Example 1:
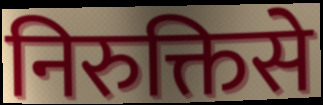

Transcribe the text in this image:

निरुक्तिसे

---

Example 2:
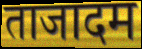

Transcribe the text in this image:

ताजादम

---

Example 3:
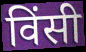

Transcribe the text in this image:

विंसी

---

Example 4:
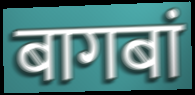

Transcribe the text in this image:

बागबां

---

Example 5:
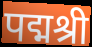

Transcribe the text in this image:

पद्मश्री